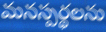
మనస్పర్థలను